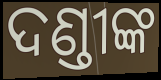
ଦଣ୍ଡୀଙ୍କ